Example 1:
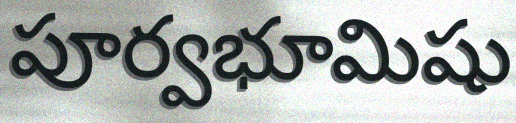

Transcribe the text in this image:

పూర్వభూమిషు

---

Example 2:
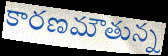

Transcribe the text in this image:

కారణమౌతున్న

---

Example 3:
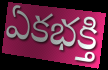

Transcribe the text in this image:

ఏకభక్తి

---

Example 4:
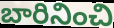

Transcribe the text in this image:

బారినించి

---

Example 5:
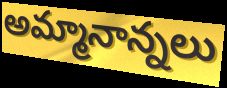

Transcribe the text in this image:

అమ్మానాన్నలు